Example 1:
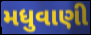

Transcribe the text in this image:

મધુવાણી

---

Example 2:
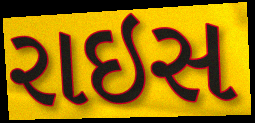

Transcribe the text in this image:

રાઇસ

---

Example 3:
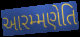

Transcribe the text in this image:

આરમ્મણેતિ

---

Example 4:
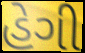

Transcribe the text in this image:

હેગી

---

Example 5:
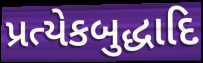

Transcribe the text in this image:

પ્રત્યેકબુદ્ધાદિ